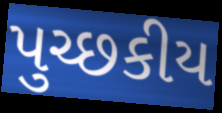
પુચ્છકીય